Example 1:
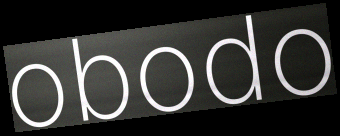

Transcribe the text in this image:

obodo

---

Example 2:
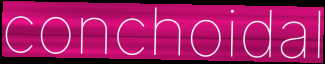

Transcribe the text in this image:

conchoidal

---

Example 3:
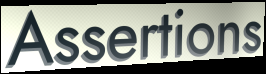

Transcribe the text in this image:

Assertions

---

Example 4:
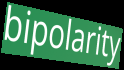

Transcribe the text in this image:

bipolarity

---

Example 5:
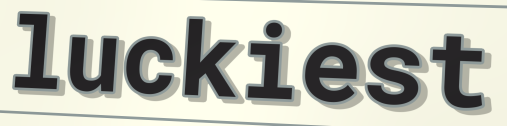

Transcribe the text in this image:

luckiest